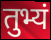
तुभ्यं